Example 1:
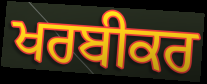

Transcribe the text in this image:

ਖਰਬੀਕਰ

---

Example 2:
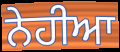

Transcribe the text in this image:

ਨੇਹੀਆ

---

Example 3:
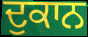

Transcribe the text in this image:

ਦੁਕਾਨ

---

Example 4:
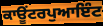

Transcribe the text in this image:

ਕਾਊਂਟਰਪੁਆਇੰਟ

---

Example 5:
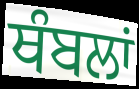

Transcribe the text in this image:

ਥੰਬਲਾਂ